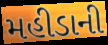
મહીડાની